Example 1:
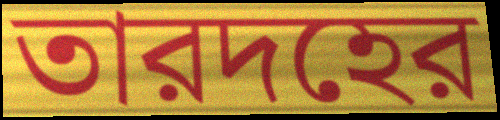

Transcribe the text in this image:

তারদহের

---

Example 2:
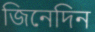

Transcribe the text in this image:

জিনেদিন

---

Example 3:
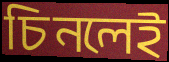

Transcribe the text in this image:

চিনলেই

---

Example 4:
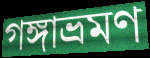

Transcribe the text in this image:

গঙ্গাভ্রমণ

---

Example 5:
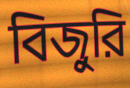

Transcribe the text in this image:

বিজুরি